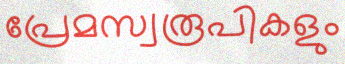
പ്രേമസ്വരൂപികളും